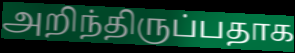
அறிந்திருப்பதாக